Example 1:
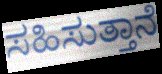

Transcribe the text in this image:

ಸಹಿಸುತ್ತಾನೆ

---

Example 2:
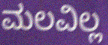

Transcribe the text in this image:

ಮಲವಿಲ್ಲ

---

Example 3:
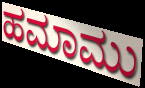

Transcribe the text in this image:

ಹಮಾಮು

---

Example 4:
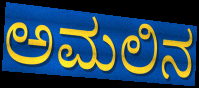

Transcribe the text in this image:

ಅಮಲಿನ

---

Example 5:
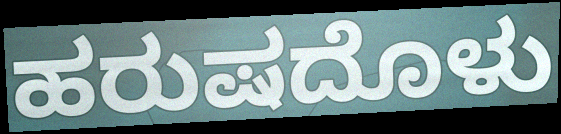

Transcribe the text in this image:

ಹರುಷದೊಳು